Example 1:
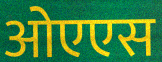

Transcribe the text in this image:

ओएएस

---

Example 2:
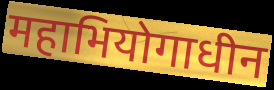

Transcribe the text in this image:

महाभियोगाधीन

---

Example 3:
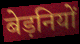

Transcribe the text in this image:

बेड़नियों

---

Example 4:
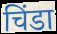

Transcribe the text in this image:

चिंडा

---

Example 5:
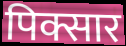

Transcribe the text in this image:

पिक्सार